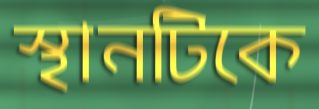
স্থানটিকে